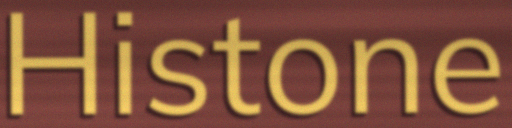
Histone